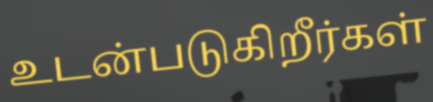
உடன்படுகிறீர்கள்